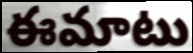
ఈమాటు